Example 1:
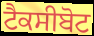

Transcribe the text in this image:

ਟੈਕਸੀਬੋਟ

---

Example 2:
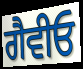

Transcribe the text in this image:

ਗੈਵੀਓ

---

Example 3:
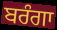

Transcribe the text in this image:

ਬਰੰਗਾ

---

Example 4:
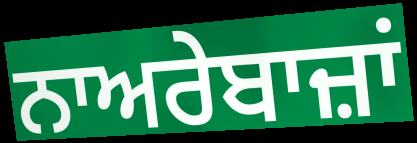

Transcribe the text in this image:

ਨਾਅਰੇਬਾਜ਼ਾਂ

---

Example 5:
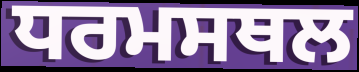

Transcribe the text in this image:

ਧਰਮਸਥਲ